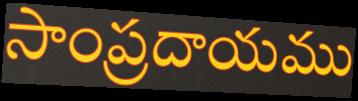
సాంప్రదాయము